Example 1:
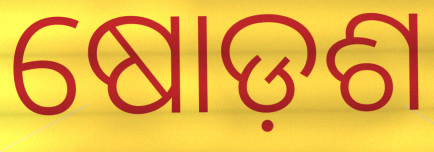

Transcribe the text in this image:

ଷୋଡ଼ଶ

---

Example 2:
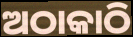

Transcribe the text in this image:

ଅଠାକାଠି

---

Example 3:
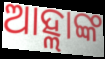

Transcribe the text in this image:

ଆହ୍ଲାଙ୍କ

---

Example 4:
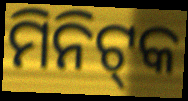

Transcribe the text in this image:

ମିନିଟ୍‍କ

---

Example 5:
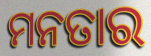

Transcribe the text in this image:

ମନତାର